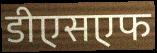
डीएसएफ